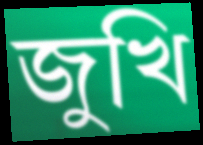
জুখি